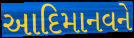
આદિમાનવને